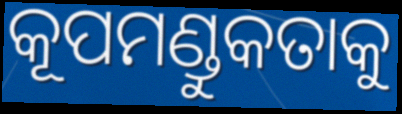
କୂପମଣ୍ଡୁକତାକୁ